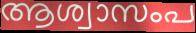
ആശ്വാസംപ